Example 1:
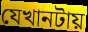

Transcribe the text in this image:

যেখানটায়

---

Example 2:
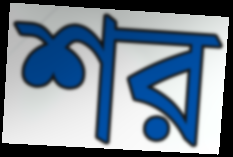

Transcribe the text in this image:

শর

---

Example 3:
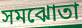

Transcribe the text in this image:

সমঝোতা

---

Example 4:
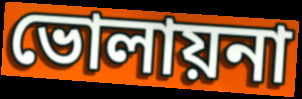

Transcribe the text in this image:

ভোলায়না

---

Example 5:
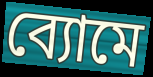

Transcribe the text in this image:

ব্যোমে